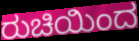
ರುಚಿಯಿಂದ